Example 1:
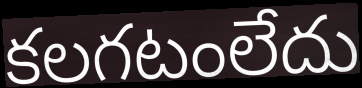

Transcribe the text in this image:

కలగటంలేదు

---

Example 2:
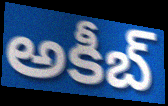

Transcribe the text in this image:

అకీబ్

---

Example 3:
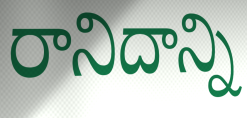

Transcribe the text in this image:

రానిదాన్ని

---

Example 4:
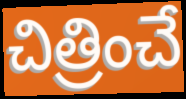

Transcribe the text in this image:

చిత్రించే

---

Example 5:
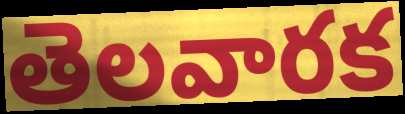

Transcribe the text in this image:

తెలవారక